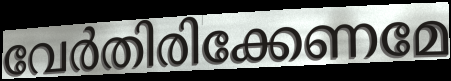
വേർതിരിക്കേണമേ